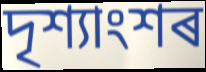
দৃশ্যাংশৰ